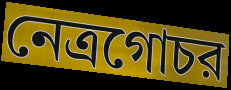
নেত্রগোচর